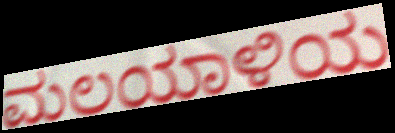
ಮಲಯಾಳಿಯ